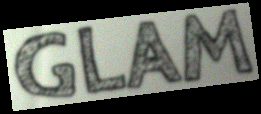
GLAM